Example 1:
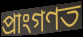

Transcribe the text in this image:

প্ৰাংগণত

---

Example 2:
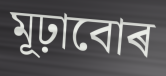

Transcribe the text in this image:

মূঢ়াবোৰ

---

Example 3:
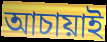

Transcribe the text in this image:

আচায়াই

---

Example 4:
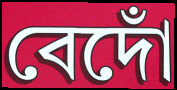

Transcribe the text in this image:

বেদোঁ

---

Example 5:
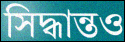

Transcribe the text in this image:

সিদ্ধান্তও